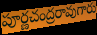
పూర్ణచంద్రరావుగారు